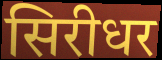
सिरीधर